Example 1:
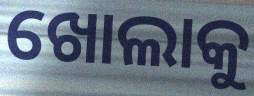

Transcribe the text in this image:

ଖୋଲାକୁ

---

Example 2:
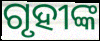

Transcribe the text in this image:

ଗୃହୀଙ୍କ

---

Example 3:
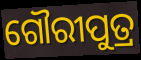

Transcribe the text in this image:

ଗୌରୀପୁତ୍ର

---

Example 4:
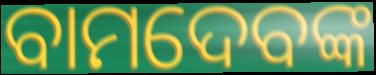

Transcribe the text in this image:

ବାମଦେବଙ୍କ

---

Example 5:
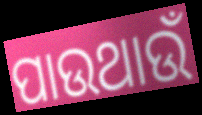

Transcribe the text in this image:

ପାଉଥାଉଁ